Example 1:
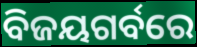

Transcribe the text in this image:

ବିଜୟଗର୍ବରେ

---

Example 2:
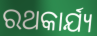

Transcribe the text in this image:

ରଥକାର୍ଯ୍ୟ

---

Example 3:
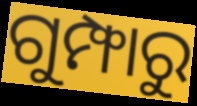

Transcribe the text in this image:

ଗୁମ୍ଫାରୁ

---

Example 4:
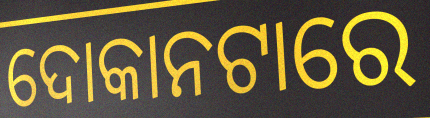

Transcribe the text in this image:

ଦୋକାନଟାରେ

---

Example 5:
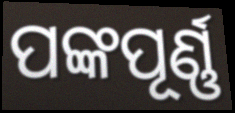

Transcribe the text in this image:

ପଙ୍କପୂର୍ଣ୍ଣ